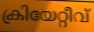
ക്രിയേറ്റീവ്